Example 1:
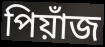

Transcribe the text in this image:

পিয়াঁজ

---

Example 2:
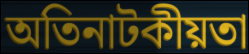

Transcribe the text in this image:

অতিনাটকীয়তা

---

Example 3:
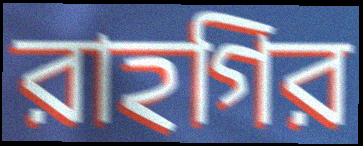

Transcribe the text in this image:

রাহগির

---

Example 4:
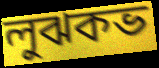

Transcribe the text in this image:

লুঝকভ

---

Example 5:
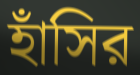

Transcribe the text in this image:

হাঁসির